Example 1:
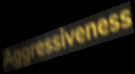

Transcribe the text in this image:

Aggressiveness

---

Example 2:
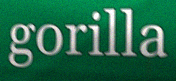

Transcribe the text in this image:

gorilla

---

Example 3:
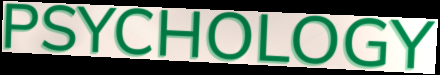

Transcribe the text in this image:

PSYCHOLOGY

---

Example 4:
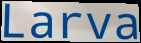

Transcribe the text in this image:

Larva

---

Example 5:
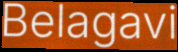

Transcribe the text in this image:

Belagavi